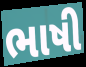
ભાષી